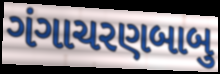
ગંગાચરણબાબુ